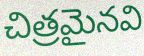
చిత్రమైనవి